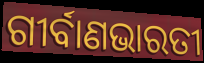
ଗୀର୍ବାଣଭାରତୀ